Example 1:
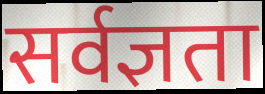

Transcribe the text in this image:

सर्वज्ञता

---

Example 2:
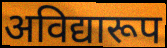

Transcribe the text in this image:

अविद्यारूप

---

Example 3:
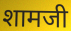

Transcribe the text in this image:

शामजी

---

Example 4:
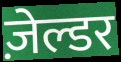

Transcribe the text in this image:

ज़ेल्डर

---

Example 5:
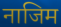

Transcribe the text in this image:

नाजिम